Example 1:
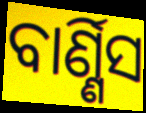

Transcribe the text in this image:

ବାର୍ଣ୍ଣିସ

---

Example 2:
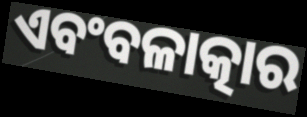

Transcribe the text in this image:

ଏବଂବଳାତ୍କାର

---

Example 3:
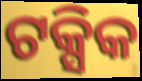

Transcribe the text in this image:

ଟକ୍ସିକ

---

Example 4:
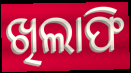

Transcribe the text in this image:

ଖିଲାଫି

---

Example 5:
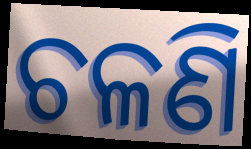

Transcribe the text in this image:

ଚଳଣି